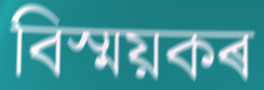
বিস্ময়কৰ